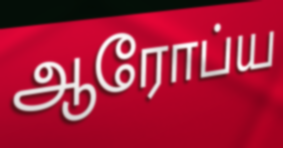
ஆரோப்ய